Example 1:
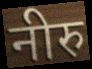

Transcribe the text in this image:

नीरु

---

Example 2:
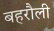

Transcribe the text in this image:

बहरौली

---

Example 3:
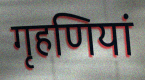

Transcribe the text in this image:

गृहणियां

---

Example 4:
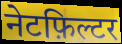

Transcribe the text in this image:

नेटफ़िल्टर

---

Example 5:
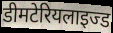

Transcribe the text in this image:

डीमटेरियलाइज्ड